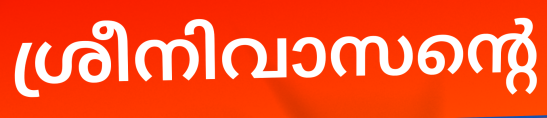
ശ്രീനിവാസന്റെ